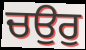
ਚਉਰੁ